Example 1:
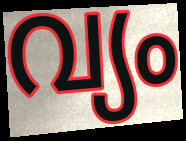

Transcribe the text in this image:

വ്യം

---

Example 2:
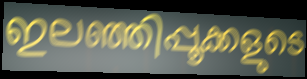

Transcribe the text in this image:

ഇലഞ്ഞിപ്പൂക്കളുടെ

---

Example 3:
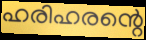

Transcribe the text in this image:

ഹരിഹരന്റെ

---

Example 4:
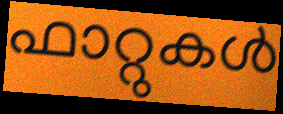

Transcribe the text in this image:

ഫാറ്റുകൾ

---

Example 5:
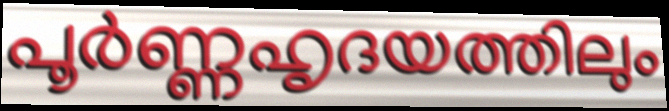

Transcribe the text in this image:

പൂർണ്ണഹൃദയത്തിലും